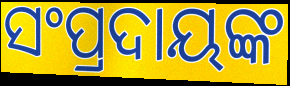
ସଂପ୍ରଦାୟଙ୍କ